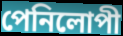
পেনিলোপী